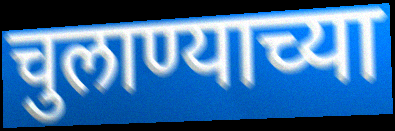
चुलाण्याच्या